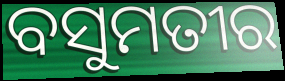
ବସୁମତୀର